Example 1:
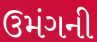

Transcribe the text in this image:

ઉમંગની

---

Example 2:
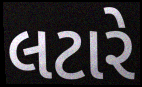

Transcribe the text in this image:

લટારે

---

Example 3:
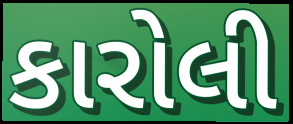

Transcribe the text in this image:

કારોલી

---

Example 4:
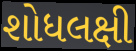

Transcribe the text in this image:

શોધલક્ષી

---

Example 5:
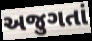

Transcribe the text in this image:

અજુગતાં